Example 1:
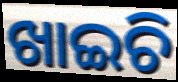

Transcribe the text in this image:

ଖାଇଚି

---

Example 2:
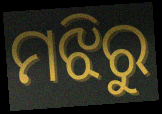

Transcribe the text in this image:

ମଝିରୁ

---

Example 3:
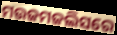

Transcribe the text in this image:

ମଉଜମଜଲିସରେ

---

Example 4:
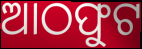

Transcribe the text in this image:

ଆଠଫୁଟ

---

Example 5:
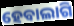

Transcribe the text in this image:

ହେବାଲାଗି